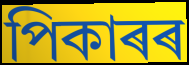
পিকাৰৰ